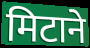
मिटाने